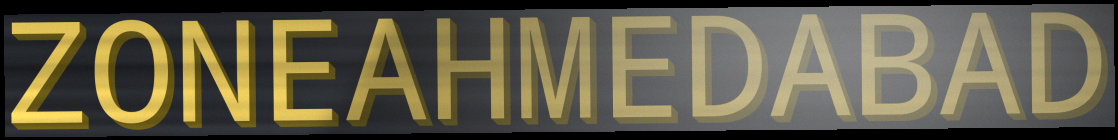
ZONEAHMEDABAD